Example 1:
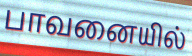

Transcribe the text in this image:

பாவனையில்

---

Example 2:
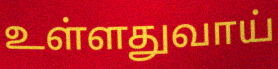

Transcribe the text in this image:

உள்ளதுவாய்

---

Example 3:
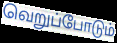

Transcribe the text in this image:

வெறுப்போடும்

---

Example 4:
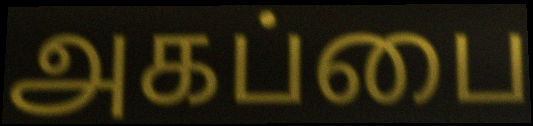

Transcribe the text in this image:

அகப்பை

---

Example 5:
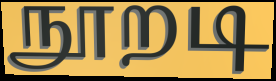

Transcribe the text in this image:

நூறடி